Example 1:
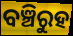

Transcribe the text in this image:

ବଞ୍ଚିରୁହ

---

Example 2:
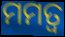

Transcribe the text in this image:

ମମତ୍ୱ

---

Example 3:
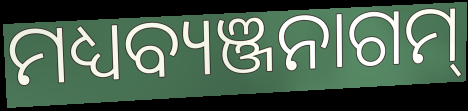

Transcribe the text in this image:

ମଧ୍ୟବ୍ୟଞ୍ଜନାଗମ୍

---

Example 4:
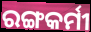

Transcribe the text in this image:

ରଙ୍ଗକର୍ମୀ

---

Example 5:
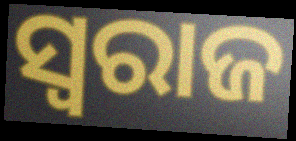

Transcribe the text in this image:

ସ୍ଵରାଜ